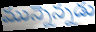
మున్నెన్నడు